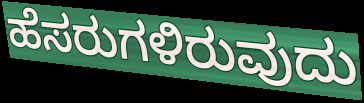
ಹೆಸರುಗಳಿರುವುದು